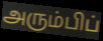
அரும்பிப்